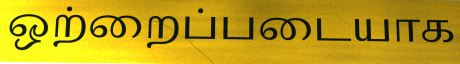
ஒற்றைப்படையாக